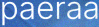
paeraa